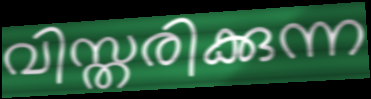
വിസ്തരിക്കുന്ന